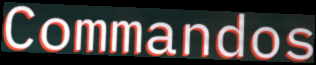
Commandos